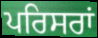
ਪਰਿਸਰਾਂ